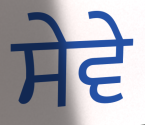
ਸੇਵੇ